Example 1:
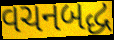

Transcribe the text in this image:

વચનબદ્ધ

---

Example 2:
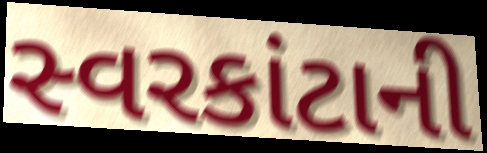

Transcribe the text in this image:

સ્વરકાંટાની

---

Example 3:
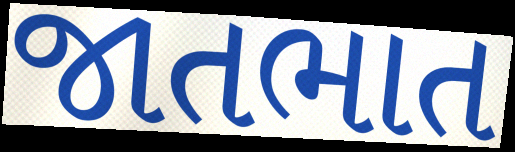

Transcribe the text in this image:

જાતભાત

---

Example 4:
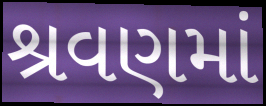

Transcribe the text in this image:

શ્રવણમાં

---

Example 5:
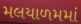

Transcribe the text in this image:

મલયાળમમાં